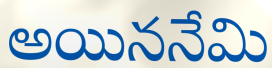
అయిననేమి